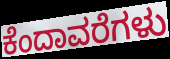
ಕೆಂದಾವರೆಗಳು